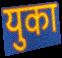
युका